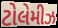
ટોલેમીઝ